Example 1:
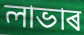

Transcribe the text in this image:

লাভাৰ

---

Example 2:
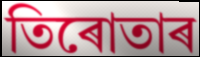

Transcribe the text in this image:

তিৰোতাৰ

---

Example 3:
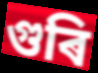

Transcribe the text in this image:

গুৰি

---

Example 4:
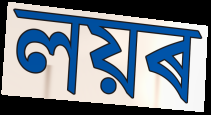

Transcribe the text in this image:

লয়ৰ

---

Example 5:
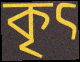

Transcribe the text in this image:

কৃৎ